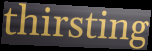
thirsting